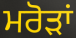
ਮਰੋੜਾਂ